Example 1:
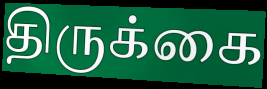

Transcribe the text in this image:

திருக்கை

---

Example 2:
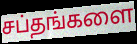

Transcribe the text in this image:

சப்தங்களை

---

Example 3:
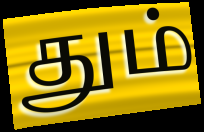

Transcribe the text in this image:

தும்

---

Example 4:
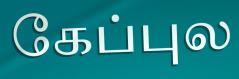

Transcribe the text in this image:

கேப்புல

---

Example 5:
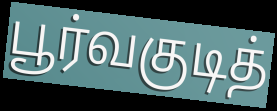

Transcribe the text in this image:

பூர்வகுடித்